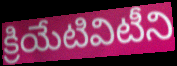
క్రియేటివిటీని